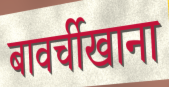
बावर्चीखाना